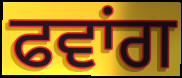
ਫਵਾਂਗ